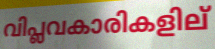
വിപ്ലവകാരികളില്